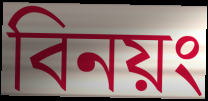
বিনয়ং